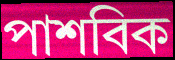
পাশবিক